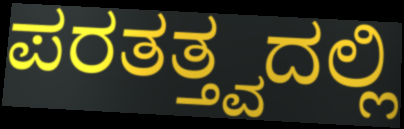
ಪರತತ್ತ್ವದಲ್ಲಿ